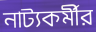
নাট্যকর্মীর